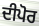
ਦੀਪੋਰ